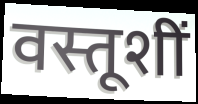
वस्तूशीं